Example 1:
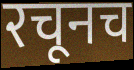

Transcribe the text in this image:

रचूनच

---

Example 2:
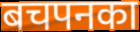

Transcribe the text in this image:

बचपनका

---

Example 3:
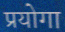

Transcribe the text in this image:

प्रयोगा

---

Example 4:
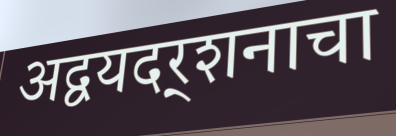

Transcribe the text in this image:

अद्वयदर्शनाचा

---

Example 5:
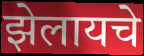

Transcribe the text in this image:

झेलायचे